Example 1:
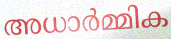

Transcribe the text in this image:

അധാർമ്മിക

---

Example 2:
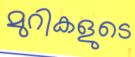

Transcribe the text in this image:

മുറികളുടെ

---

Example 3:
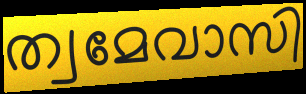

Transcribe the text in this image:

ത്വമേവാസി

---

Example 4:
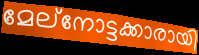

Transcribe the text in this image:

മേല്നോട്ടക്കാരായി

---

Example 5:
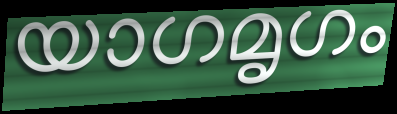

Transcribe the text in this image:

യാഗമൃഗം